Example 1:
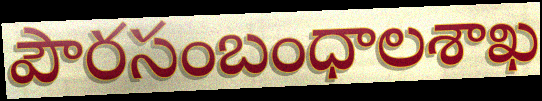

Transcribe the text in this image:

పౌరసంబంధాలశాఖ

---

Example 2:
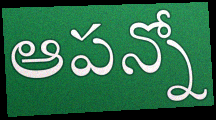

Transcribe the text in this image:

ఆపన్నో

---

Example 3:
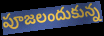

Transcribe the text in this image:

పూజలందుకున్న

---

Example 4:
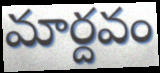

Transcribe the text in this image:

మార్దవం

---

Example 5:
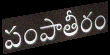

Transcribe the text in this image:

పంపాతీరం